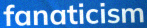
fanaticism